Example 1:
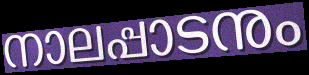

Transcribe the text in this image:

നാലപ്പാടനും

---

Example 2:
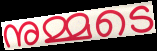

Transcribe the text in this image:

നുമ്മടെ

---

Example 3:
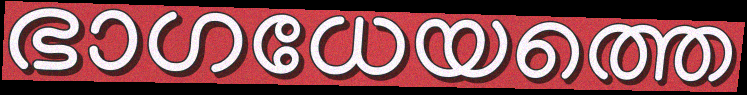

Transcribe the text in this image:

ഭാഗധേയത്തെ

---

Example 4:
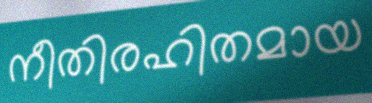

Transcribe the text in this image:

നീതിരഹിതമായ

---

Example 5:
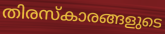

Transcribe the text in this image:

തിരസ്കാരങ്ങളുടെ